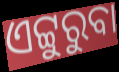
ଏଟ୍ଟୁରୁବା